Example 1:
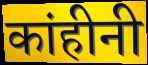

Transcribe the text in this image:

कांहीनी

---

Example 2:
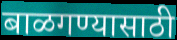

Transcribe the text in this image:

बाळगण्यासाठी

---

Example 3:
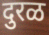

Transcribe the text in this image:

दुरळ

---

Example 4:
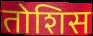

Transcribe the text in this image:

तोशिस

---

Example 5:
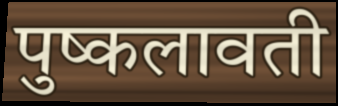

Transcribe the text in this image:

पुष्कलावती